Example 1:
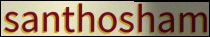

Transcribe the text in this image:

santhosham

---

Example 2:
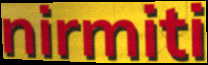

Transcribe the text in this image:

nirmiti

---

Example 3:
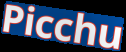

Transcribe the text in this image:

Picchu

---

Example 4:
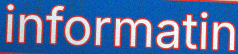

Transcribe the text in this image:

informatin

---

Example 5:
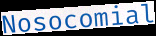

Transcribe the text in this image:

Nosocomial